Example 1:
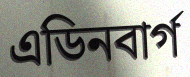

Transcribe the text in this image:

এডিনবাৰ্গ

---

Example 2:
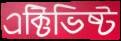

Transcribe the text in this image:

এক্টিভিষ্ট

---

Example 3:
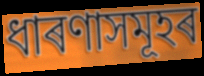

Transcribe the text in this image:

ধাৰণাসমূহৰ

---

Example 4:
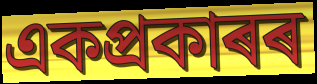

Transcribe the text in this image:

একপ্ৰকাৰৰ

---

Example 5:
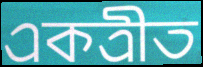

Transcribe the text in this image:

একত্ৰীত